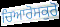
ਚਿਆਰੋਸਕੁਰੋ